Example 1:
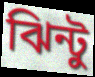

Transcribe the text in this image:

ঝিন্টু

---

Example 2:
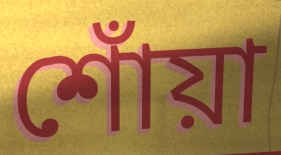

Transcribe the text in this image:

শোঁয়া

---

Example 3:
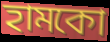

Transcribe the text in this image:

হামকো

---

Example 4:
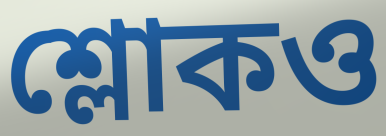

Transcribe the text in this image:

শ্লোকও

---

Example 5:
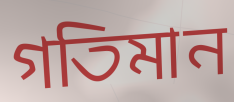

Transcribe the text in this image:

গতিমান